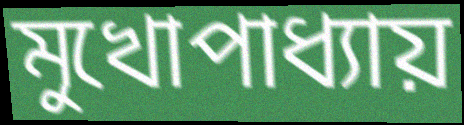
মুখোপাধ্যায়